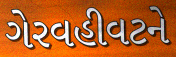
ગેરવહીવટને